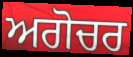
ਅਗੋਚਰ